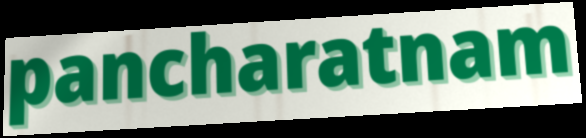
pancharatnam